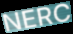
NERC